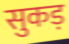
सुकड़